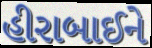
હીરાબાઈને